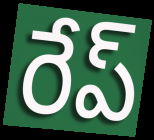
రేప్